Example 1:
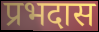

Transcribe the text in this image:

प्रभदास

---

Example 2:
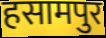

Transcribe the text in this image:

हसामपुर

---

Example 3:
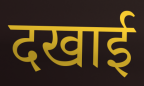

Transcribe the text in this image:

दखाई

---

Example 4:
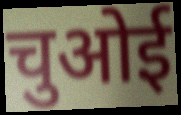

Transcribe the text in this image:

चुओई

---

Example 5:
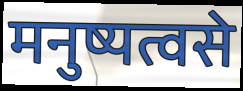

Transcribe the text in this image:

मनुष्यत्वसे